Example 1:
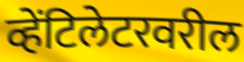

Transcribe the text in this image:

व्हेंटिलेटरवरील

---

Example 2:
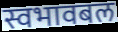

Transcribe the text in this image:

स्वभावबल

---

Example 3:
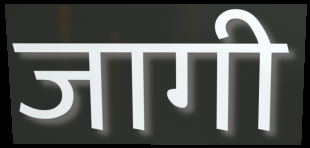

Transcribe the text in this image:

जागी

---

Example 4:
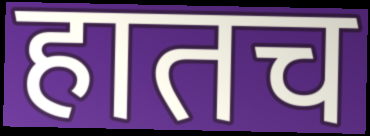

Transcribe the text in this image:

हातच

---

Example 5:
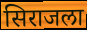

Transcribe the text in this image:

सिराजला